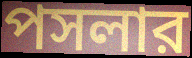
পসলার